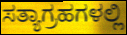
ಸತ್ಯಾಗ್ರಹಗಳಲ್ಲಿ